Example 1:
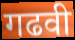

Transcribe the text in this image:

गढवी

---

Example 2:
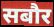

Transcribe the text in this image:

सबौर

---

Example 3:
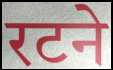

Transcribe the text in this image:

रटने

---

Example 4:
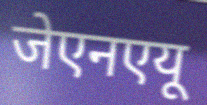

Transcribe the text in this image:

जेएनएयू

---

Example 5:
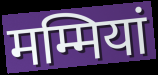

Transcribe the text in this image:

मम्मियां